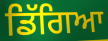
ਡਿੱਗਿਆ